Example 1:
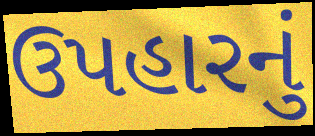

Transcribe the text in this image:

ઉપહારનું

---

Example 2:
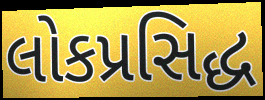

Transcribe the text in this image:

લોકપ્રસિદ્ધ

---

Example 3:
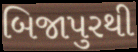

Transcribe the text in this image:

બિજાપુરથી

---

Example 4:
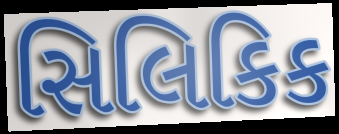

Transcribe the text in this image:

સિલિકિક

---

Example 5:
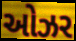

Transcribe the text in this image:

ઓઝર